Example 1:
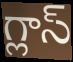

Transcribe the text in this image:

గ్లాస్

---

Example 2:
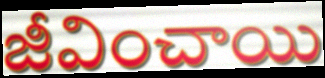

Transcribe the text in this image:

జీవించాయి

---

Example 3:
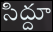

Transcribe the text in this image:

సిద్దూ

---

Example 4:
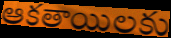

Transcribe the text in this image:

ఆకతాయిలకు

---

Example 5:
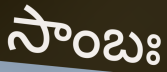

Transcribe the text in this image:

సాంబః